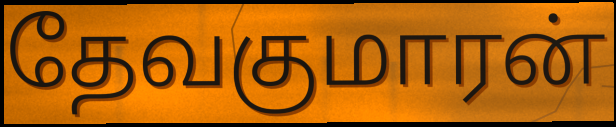
தேவகுமாரன்